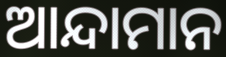
ଆନ୍ଦାମାନ